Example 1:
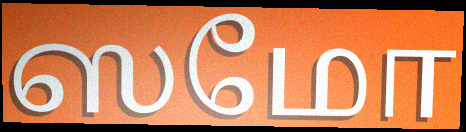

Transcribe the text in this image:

ஸமோ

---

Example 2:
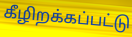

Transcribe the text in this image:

கீழிறக்கப்பட்டு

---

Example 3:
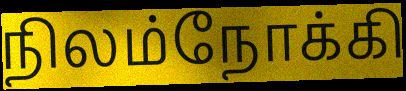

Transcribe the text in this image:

நிலம்நோக்கி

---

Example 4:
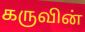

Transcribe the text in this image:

கருவின்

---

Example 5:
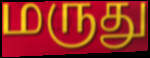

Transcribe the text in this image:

மருது